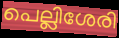
പെല്ലിശേരി